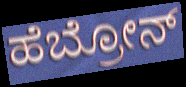
ಹೆಬ್ರೋನ್